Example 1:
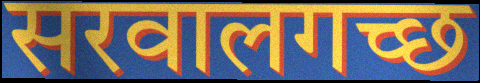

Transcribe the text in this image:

सरवालगच्छ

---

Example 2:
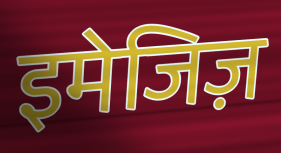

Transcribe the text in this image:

इमेजिज़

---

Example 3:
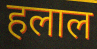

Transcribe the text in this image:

हलाल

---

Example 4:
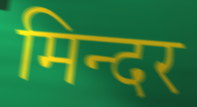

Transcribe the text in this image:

मिन्दर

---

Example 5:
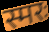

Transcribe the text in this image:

स्मरः